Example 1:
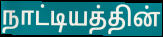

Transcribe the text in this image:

நாட்டியத்தின்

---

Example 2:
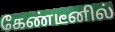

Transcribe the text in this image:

கேண்டீனில்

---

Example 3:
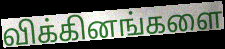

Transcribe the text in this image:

விக்கினங்களை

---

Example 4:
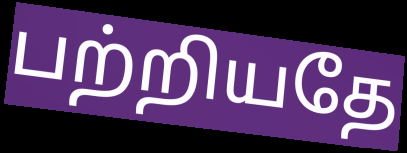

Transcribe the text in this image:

பற்றியதே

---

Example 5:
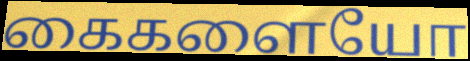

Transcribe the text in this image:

கைகளையோ